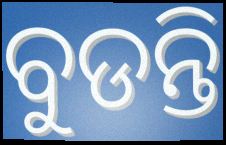
ବୁଡନ୍ତି